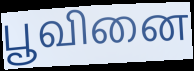
பூவினை